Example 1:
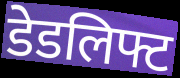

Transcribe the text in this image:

डेडलिफ्ट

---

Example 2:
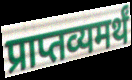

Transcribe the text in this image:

प्राप्तव्यमर्थं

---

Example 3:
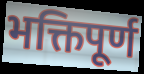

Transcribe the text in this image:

भक्तिपूर्ण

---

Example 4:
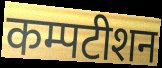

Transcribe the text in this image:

कम्पटीशन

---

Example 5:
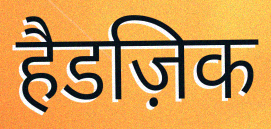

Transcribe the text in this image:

हैडज़िक